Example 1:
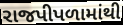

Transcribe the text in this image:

રાજપીપળામાંથી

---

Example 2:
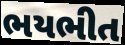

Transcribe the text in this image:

ભયભીત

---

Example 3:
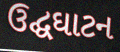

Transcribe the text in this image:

ઉદ્ઘઘાટન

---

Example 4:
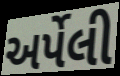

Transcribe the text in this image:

અર્પેલી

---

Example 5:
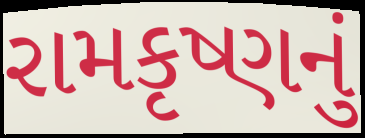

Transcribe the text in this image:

રામકૃષ્ણનું